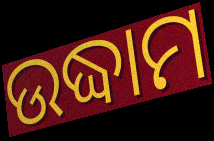
ଉଦ୍ଧାମ